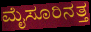
ಮೈಸೂರಿನತ್ತ